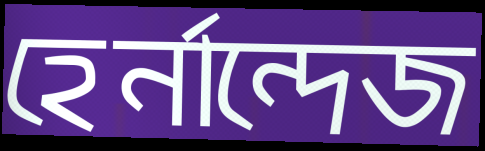
হের্নান্দেজ